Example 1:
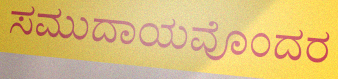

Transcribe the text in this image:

ಸಮುದಾಯವೊಂದರ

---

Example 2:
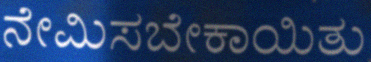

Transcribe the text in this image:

ನೇಮಿಸಬೇಕಾಯಿತು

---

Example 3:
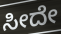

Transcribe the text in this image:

ಸೀದೇ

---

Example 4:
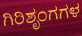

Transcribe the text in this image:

ಗಿರಿಶೃಂಗಗಳ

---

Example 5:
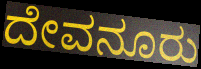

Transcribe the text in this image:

ದೇವನೂರು